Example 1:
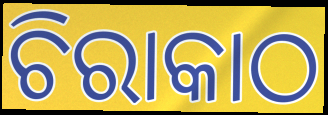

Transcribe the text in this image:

ଚିରାକାଠ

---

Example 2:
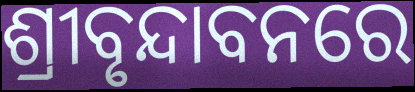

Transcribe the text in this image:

ଶ୍ରୀବୃନ୍ଦାବନରେ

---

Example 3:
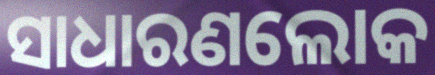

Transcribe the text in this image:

ସାଧାରଣଲୋକ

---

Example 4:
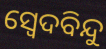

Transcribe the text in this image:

ସ୍ୱେଦବିନ୍ଦୁ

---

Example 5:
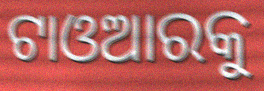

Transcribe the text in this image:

ଟାଓଆରକୁ